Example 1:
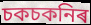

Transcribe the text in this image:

চকচকনিৰ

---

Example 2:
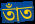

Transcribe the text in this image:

তাঁত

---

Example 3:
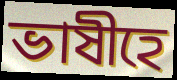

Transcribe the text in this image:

ভাষীহে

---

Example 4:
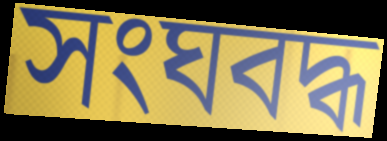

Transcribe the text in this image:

সংঘবদ্ধ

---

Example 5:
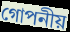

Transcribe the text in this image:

গোপনীয়